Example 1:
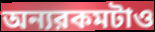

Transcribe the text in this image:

অন্যরকমটাও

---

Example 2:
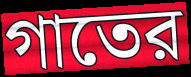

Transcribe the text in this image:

গাতের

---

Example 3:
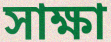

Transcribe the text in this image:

সাক্ষা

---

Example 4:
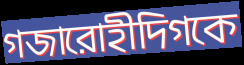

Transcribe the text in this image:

গজারোহীদিগকে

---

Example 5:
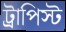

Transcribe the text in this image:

ট্রাপিস্ট